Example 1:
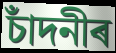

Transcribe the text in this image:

চাঁদনীৰ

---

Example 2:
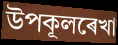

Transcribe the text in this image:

উপকূলৰেখা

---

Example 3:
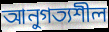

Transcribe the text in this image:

আনুগত্যশীল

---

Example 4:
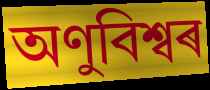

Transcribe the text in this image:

অণুবিশ্বৰ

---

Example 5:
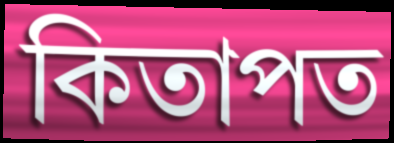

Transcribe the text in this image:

কিতাপত